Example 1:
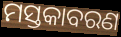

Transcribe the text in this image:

ମସ୍ତକାବରଣ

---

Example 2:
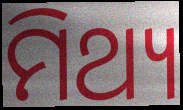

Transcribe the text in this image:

ମିଥ୍ୟ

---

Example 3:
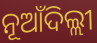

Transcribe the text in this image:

ନୂଆଁଦିଲ୍ଲୀ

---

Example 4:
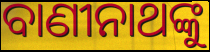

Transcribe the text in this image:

ବାଣୀନାଥଙ୍କୁ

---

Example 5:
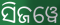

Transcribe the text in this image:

ସିଜୱେ